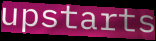
upstarts